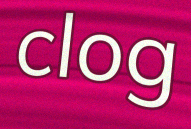
clog